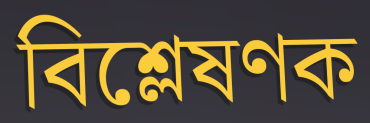
বিশ্লেষণক